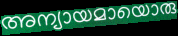
അന്യായമായൊരു